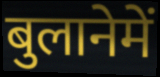
बुलानेमें